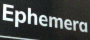
Ephemera